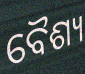
ବୈଶ୍ୟ